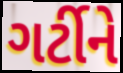
ગર્ટીને